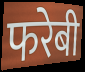
फरेबी